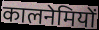
कालनेमियों